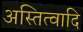
अस्तित्वादि